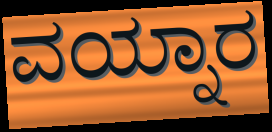
ವಯ್ನಾರ